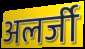
अलर्जी